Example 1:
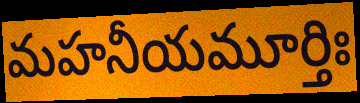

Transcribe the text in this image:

మహనీయమూర్తిః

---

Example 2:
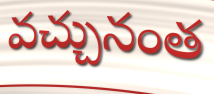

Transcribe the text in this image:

వచ్చునంత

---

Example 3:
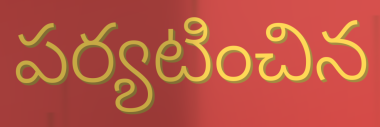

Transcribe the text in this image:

పర్యటించిన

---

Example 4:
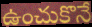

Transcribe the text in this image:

ఉంచుకొనే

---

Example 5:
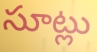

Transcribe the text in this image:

సూట్లు